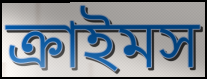
ক্রাইমস